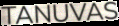
TANUVAS